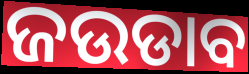
ଜଉଡାବ